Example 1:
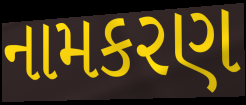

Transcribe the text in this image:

નામકરણ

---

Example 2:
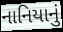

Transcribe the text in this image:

નાનિયાનું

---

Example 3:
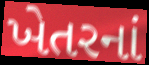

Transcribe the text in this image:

ખેતરનાં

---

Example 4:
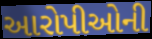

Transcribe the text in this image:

આરોપીઓની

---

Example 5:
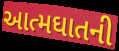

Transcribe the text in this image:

આત્મઘાતની